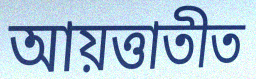
আয়ত্তাতীত